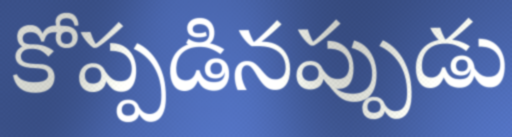
కోప్పడినప్పుడు